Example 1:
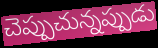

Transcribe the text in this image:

చెప్పుచున్నప్పుడు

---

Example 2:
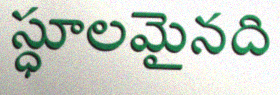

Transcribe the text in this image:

స్ధూలమైనది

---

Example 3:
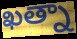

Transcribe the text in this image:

ఖత్నా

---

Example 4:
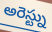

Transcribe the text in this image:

అరెస్ట్ను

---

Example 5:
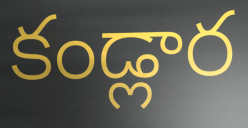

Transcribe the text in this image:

కండ్లార